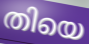
തിയെ